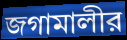
জগামালীর